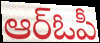
ఆర్ఓపీ